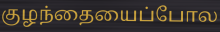
குழந்தையைப்போல